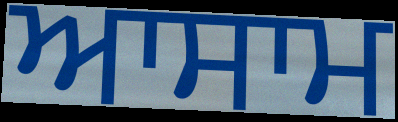
ਆਸਾਮ